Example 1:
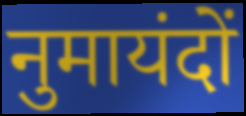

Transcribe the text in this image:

नुमायंदों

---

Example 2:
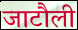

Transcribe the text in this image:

जाटौली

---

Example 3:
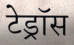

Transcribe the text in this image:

टेड्रॉस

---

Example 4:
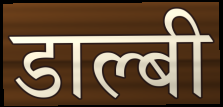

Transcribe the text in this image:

डाल्बी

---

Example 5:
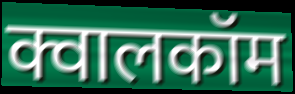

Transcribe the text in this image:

क्‍वालकॉम